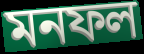
মনফল